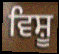
ਵਿਸ਼ੂ